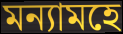
মন্যামহে